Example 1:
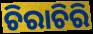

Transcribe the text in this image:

ଚିରାଚିରି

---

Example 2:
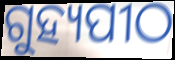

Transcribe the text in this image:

ଗୁହ୍ୟପୀଠ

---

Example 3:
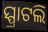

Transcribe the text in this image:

ସ୍ପ୍ରାଟଲି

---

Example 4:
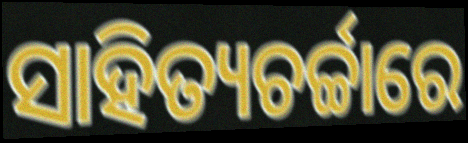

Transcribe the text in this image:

ସାହିତ୍ୟଚର୍ଚ୍ଚାରେ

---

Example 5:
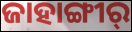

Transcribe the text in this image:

ଜାହାଙ୍ଗୀର୍